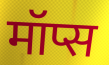
मॉप्स